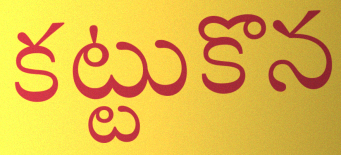
కట్టుకొన